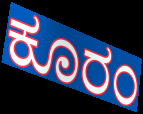
ಕೂರಂ